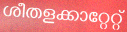
ശീതളക്കാറ്റേറ്റ്